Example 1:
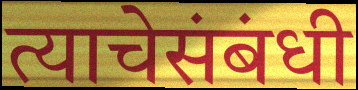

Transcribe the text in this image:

त्याचेसंबंधी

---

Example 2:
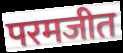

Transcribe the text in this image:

परमजीत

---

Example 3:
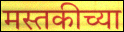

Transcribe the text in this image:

मस्तकीच्या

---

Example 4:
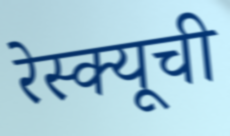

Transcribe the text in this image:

रेस्क्यूची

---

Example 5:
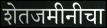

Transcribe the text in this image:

शेतजमीनीचा